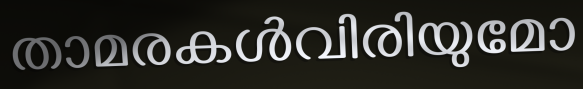
താമരകൾവിരിയുമോ